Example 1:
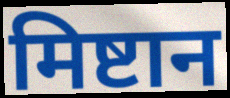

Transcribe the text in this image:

मिष्टान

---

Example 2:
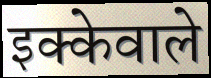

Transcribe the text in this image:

इक्केवाले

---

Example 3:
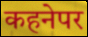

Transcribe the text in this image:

कहनेपर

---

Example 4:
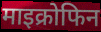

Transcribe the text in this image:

माइक्रोफिन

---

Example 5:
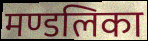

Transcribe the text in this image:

मण्डलिका